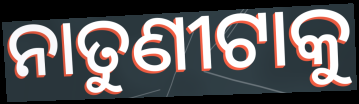
ନାତୁଣୀଟାକୁ